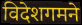
विदेशगमने